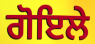
ਗੋਇਲੇ